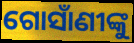
ଗୋସାଁଣୀଙ୍କୁ